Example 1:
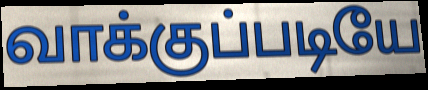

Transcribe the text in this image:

வாக்குப்படியே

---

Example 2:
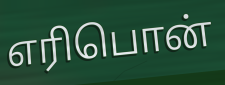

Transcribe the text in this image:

எரிபொன்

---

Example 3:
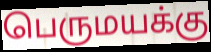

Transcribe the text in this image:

பெருமயக்கு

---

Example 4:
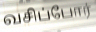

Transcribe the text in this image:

வசிப்போர்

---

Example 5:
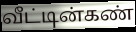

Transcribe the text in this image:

வீட்டின்கண்